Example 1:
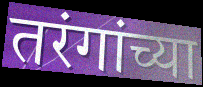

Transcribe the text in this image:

तरंगांच्या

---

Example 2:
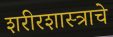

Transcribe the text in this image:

शरीरशास्त्राचे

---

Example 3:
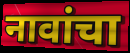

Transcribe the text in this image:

नावांचा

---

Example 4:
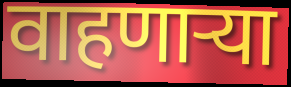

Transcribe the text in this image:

वाहणाऱ्या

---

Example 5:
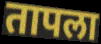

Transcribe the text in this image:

तापला